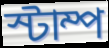
স্টাম্প